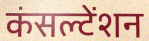
कंसल्टेंशन